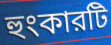
হুংকারটি